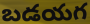
బడయగ